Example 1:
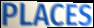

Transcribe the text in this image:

PLACES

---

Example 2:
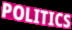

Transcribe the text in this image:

POLITICS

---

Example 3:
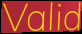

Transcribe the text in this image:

Valid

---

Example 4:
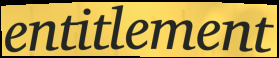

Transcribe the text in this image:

entitlement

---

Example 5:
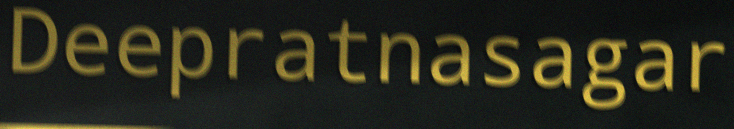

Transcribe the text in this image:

Deepratnasagar